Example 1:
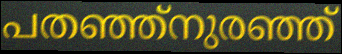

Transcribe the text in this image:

പതഞ്ഞ്നുരഞ്ഞ്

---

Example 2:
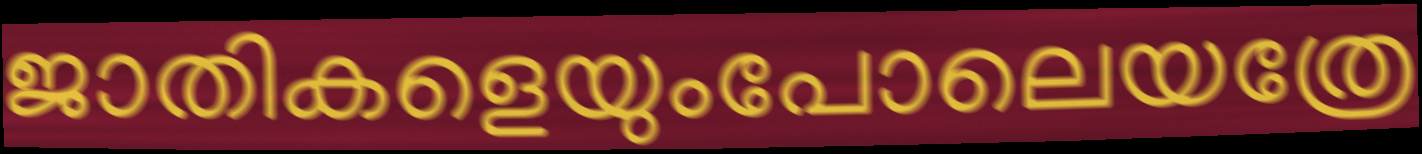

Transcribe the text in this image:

ജാതികളെയുംപോലെയത്രേ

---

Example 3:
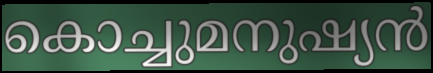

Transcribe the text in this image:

കൊച്ചുമനുഷ്യൻ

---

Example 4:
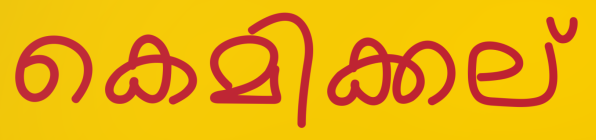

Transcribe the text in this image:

കെമിക്കല്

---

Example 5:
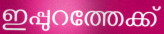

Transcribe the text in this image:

ഇപ്പുറത്തേക്ക്